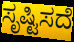
ಸೃಷ್ಟಿಸದೆ